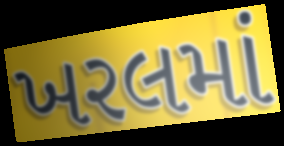
ખરલમાં